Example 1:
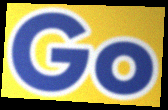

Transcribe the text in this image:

Go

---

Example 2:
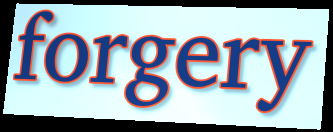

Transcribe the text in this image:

forgery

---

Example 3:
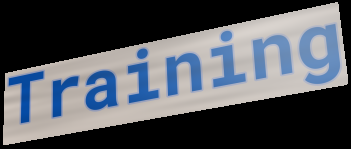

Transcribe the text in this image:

Training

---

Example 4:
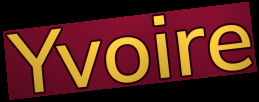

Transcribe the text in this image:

Yvoire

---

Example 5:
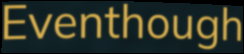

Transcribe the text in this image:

Eventhough